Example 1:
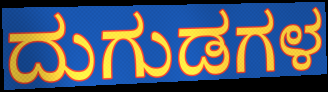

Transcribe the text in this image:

ದುಗುಡಗಳ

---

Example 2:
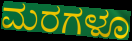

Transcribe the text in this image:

ಮರಗಳೂ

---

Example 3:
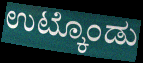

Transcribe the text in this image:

ಉಟ್ಕೊಂಡು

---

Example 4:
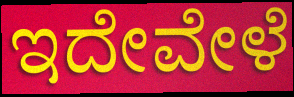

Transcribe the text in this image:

ಇದೇವೇಳೆ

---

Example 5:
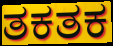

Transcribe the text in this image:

ತಕತಕ